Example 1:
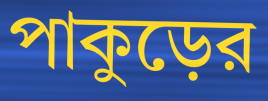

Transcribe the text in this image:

পাকুড়ের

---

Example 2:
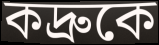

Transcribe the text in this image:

কদ্রুকে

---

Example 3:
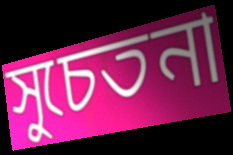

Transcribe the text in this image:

সুচেতনা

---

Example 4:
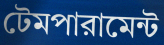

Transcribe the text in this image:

টেমপারামেন্ট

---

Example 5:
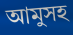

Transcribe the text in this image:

আমুসহ